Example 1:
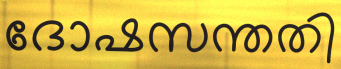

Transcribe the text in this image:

ദോഷസന്തതി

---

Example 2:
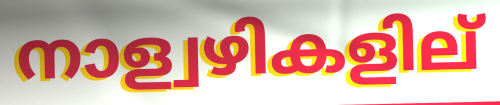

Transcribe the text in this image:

നാള്വഴികളില്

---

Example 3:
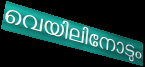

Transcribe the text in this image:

വെയിലിനോടും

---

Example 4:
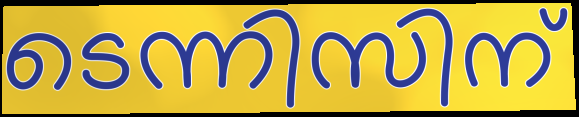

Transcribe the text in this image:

ടെന്നിസിന്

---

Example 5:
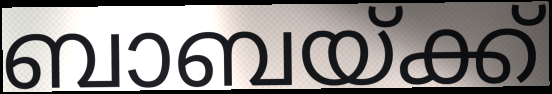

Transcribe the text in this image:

ബാബയ്ക്ക്